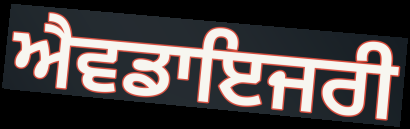
ਐਵਡਾਇਜਰੀ